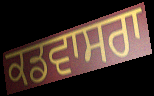
ਕਡਵਾਸਰਾ